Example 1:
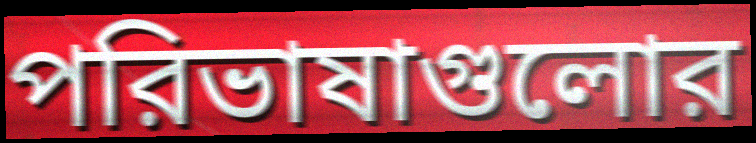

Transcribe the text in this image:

পরিভাষাগুলোর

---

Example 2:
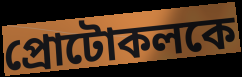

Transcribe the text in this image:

প্রোটোকলকে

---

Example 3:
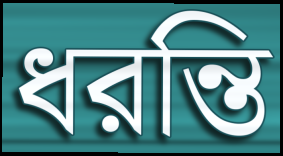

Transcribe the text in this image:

ধরন্তি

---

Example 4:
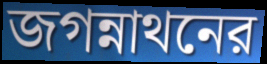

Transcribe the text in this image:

জগন্নাথনের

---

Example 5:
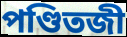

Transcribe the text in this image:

পণ্ডিতজী